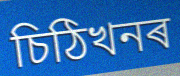
চিঠিখনৰ